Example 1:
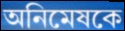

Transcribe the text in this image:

অনিমেষকে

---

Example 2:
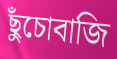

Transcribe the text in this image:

ছুঁচোবাজি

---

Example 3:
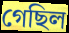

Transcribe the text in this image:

গেছিল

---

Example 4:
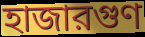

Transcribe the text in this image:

হাজারগুণ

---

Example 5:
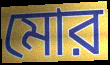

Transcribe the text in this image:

মোর